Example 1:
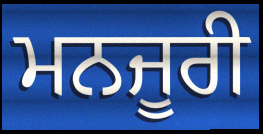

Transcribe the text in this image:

ਮਨਜੂਰੀ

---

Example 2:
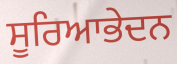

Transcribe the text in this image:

ਸੂਰਿਆਭੇਦਨ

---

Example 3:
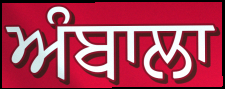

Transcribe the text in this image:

ਅੰਬਾਲਾ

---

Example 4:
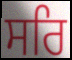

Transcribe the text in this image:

ਸਰਿ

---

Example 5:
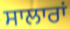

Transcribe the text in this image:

ਸਾਲਾਰਾਂ